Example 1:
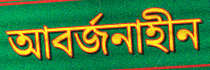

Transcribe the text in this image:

আবর্জনাহীন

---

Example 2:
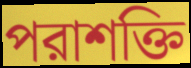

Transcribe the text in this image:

পরাশক্তি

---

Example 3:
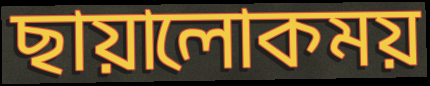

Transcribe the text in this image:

ছায়ালোকময়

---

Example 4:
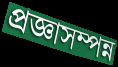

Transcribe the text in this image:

প্রজ্ঞাসম্পন্ন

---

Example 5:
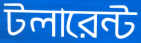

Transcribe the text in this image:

টলারেন্ট